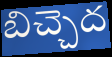
బిచ్చెద